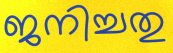
ജനിച്ചതു